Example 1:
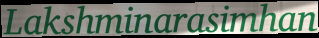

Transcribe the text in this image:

Lakshminarasimhan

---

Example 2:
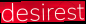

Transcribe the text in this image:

desirest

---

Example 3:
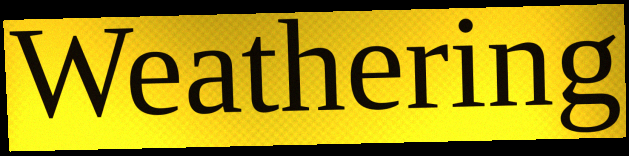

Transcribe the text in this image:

Weathering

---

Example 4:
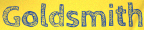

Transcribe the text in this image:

Goldsmith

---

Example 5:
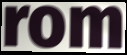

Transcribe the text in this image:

rom